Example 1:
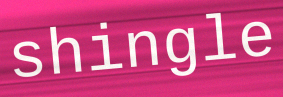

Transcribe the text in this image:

shingle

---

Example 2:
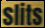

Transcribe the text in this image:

slits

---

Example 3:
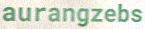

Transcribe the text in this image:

aurangzebs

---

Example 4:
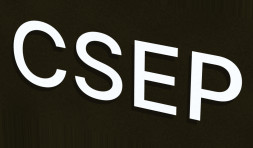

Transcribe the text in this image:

CSEP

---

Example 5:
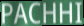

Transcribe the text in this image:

PACHHI